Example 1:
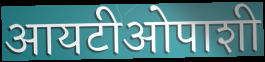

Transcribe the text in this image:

आयटीओपाशी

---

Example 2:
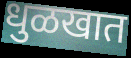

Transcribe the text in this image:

धुळखात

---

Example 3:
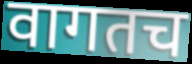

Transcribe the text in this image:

वागतच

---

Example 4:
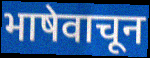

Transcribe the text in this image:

भाषेवाचून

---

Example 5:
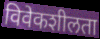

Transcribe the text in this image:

विवेकशीलता